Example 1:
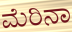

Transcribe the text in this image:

ಮೆರಿನಾ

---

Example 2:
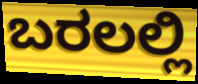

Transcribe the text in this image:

ಬರಲಲ್ಲಿ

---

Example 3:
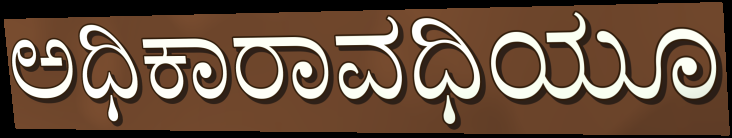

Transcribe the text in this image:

ಅಧಿಕಾರಾವಧಿಯೂ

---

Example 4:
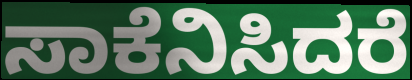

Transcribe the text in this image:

ಸಾಕೆನಿಸಿದರೆ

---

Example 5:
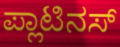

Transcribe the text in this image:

ಪ್ಲಾಟಿನಸ್